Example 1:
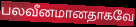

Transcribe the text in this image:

பலவீனமானதாகவே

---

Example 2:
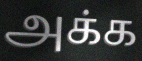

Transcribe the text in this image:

அக்க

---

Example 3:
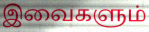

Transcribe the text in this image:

இவைகளும்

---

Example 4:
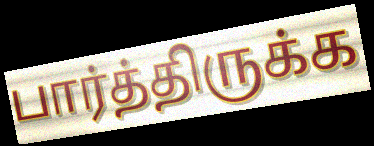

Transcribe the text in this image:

பார்த்திருக்க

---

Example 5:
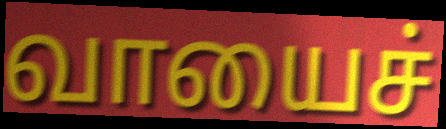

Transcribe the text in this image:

வாயைச்